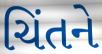
ચિંતને